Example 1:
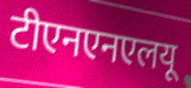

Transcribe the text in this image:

टीएनएनएलयू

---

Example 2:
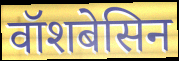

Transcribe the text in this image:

वॉशबेसिन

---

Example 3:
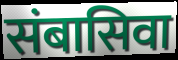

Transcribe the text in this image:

संबासिवा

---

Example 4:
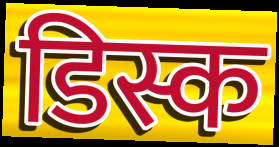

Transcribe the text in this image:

डिस्क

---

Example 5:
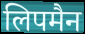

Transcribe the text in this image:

लिपमैन